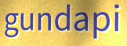
gundapi